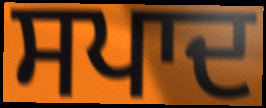
ਸਪਾਦ